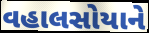
વહાલસોયાને